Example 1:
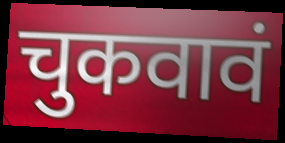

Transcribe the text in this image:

चुकवावं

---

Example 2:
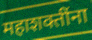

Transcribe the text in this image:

महाशक्तींना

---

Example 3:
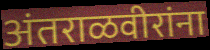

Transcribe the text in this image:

अंतराळवीरांना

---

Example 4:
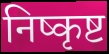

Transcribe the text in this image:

निष्कृष्ट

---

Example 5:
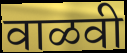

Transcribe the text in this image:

वाळवी